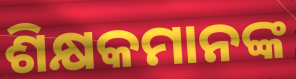
ଶିକ୍ଷକମାନଙ୍କ